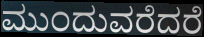
ಮುಂದುವರೆದರೆ